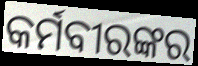
କର୍ମବୀରଙ୍କର